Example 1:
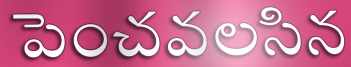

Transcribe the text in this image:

పెంచవలసిన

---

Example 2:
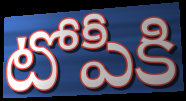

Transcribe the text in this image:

టోపీకి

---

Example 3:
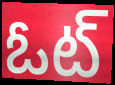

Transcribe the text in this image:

ఓట్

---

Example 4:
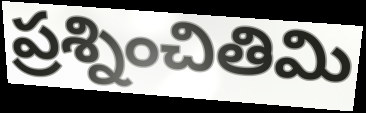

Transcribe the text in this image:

ప్రశ్నించితిమి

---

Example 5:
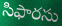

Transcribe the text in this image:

సిఫారసు